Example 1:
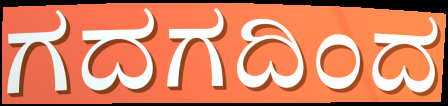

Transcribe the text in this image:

ಗದಗದಿಂದ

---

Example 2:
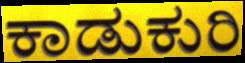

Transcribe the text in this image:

ಕಾಡುಕುರಿ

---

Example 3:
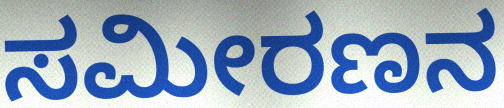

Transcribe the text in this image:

ಸಮೀರಣನ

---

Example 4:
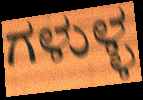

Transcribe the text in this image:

ಗಳುಳ್ಳ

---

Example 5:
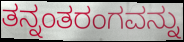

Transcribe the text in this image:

ತನ್ನಂತರಂಗವನ್ನು